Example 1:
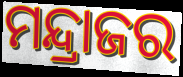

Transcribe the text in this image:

ମନ୍ଦ୍ରାଜର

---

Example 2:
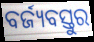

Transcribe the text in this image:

ବର୍ଜ୍ୟବସ୍ତୁର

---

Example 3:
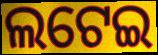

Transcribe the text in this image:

ଲଟେଇ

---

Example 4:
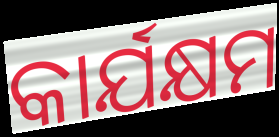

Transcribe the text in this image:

କାର୍ଯକ୍ଷମ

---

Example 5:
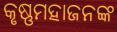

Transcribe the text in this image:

କୃଷ୍ଣମହାଜନଙ୍କ